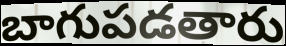
బాగుపడతారు